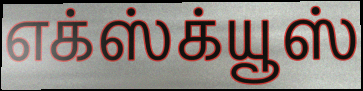
எக்ஸ்க்யூஸ்